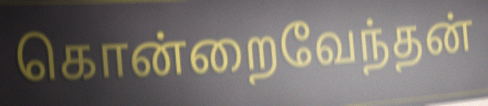
கொன்றைவேந்தன்